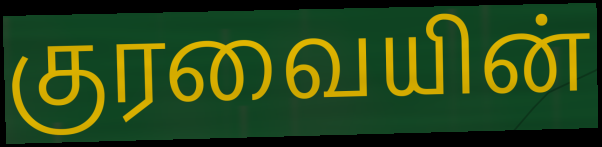
குரவையின்